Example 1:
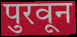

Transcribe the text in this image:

पुरवून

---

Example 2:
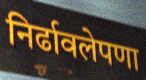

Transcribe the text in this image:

निर्ढावलेपणा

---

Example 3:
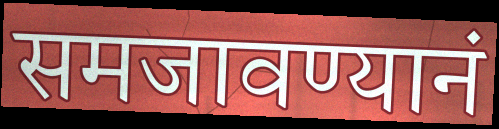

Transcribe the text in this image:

समजावण्यानं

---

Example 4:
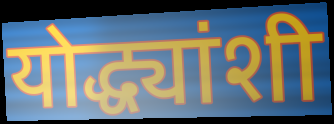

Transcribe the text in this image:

योद्ध्यांशी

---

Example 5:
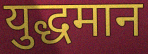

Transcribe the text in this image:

युद्धमान